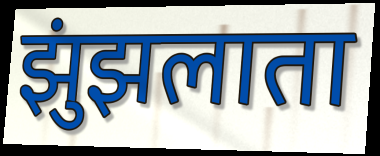
झुंझलाता